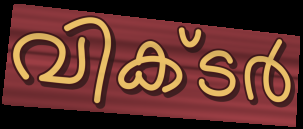
വിക്ടർ